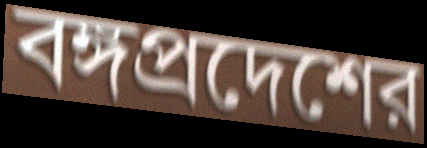
বঙ্গপ্রদেশের